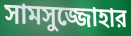
সামসুজ্জোহার